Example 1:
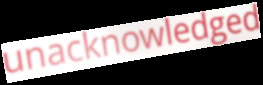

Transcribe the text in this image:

unacknowledged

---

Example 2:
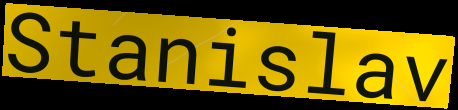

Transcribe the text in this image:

Stanislav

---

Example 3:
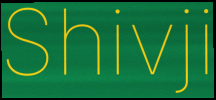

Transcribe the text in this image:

Shivji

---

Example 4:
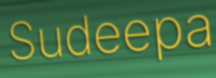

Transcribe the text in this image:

Sudeepa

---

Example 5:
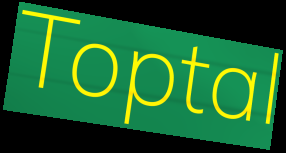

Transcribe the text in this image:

Toptal